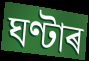
ঘণ্টাৰ